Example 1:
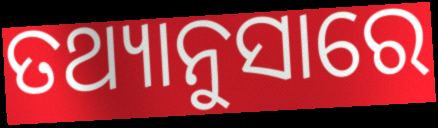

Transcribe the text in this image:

ତଥ୍ୟାନୁସାରେ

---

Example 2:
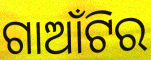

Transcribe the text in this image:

ଗାଆଁଟିର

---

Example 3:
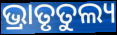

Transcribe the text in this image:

ଭ୍ରାତୃତୁଲ୍ୟ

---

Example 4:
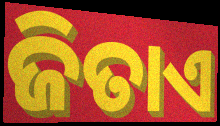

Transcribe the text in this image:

ଜିତାଏ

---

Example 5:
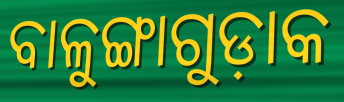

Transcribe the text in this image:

ବାଳୁଙ୍ଗାଗୁଡ଼ାକ